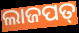
ଲାଜପତ୍